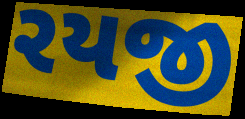
રયજી